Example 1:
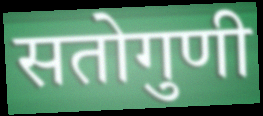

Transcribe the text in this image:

सतोगुणी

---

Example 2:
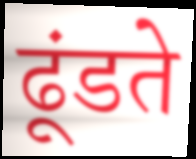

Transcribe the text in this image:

ढूंडते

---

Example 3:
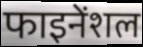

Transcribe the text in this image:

फाइनेंशल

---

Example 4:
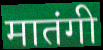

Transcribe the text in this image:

मातंगी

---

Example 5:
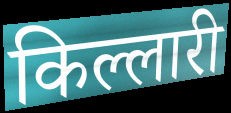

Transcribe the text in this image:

किल्लारी